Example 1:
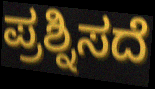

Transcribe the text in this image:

ಪ್ರಶ್ನಿಸದೆ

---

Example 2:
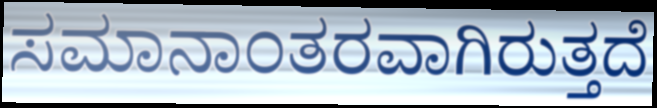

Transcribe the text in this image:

ಸಮಾನಾಂತರವಾಗಿರುತ್ತದೆ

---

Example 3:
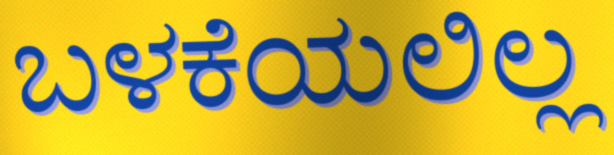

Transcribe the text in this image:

ಬಳಕೆಯಲಿಲ್ಲ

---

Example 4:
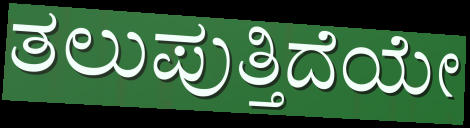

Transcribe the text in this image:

ತಲುಪುತ್ತಿದೆಯೇ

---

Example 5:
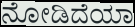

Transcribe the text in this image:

ನೋಡಿದೆಯಾ